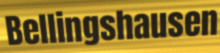
Bellingshausen